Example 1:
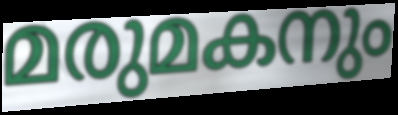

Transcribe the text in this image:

മരുമകനും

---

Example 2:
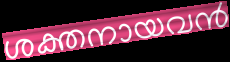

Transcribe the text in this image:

ശക്തനായവൻ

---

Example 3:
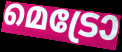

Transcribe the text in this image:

മെട്രോ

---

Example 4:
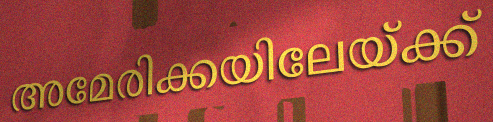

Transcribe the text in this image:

അമേരിക്കയിലേയ്ക്ക്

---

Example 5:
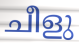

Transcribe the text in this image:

ചീളു